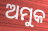
ଅମୁକ